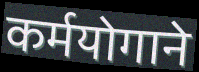
कर्मयोगाने